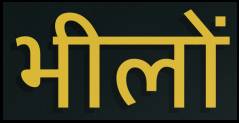
भीलों